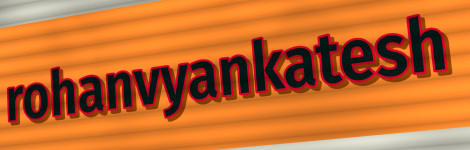
rohanvyankatesh